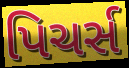
પિચર્સ